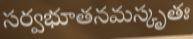
సర్వభూతనమస్కృతః